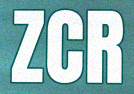
ZCR